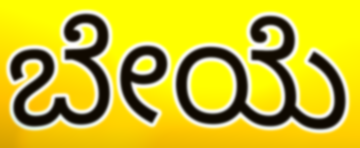
ಬೇಯೆ